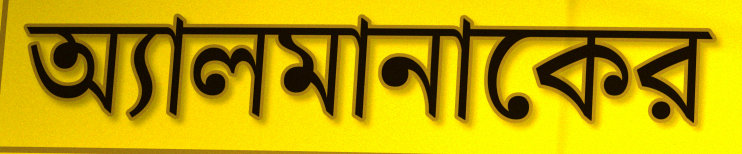
অ্যালমানাকের